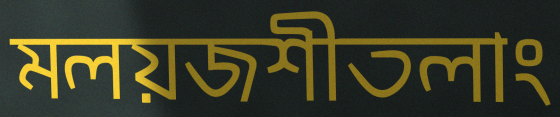
মলয়জশীতলাং